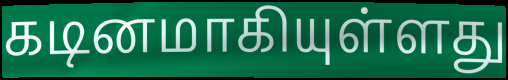
கடினமாகியுள்ளது